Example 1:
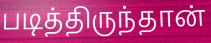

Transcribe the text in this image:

படித்திருந்தான்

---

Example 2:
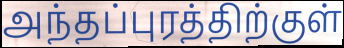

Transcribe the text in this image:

அந்தப்புரத்திற்குள்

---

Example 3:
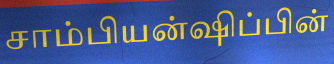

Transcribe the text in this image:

சாம்பியன்ஷிப்பின்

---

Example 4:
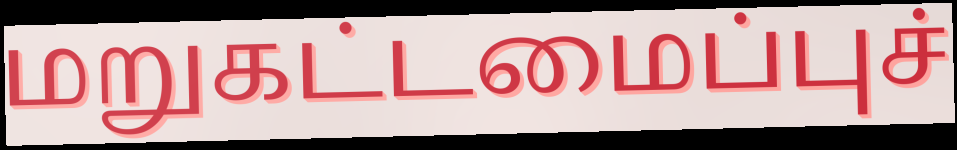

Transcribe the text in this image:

மறுகட்டமைப்புச்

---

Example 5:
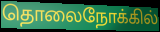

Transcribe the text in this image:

தொலைநோக்கில்